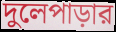
দুলেপাড়ার